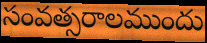
సంవత్సరాలముందు